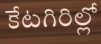
కేటగిరిల్లో